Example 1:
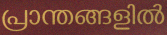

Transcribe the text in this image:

പ്രാന്തങ്ങളിൽ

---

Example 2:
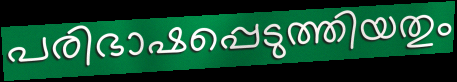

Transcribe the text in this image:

പരിഭാഷപ്പെടുത്തിയതും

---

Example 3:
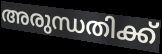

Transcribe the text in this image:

അരുന്ധതിക്ക്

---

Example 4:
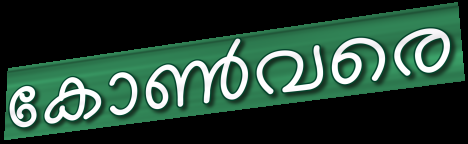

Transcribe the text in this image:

കോൺവരെ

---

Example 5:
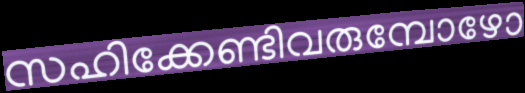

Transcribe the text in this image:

സഹിക്കേണ്ടിവരുമ്പോഴോ